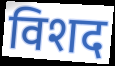
विशद